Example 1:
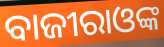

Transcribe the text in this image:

ବାଜୀରାଓଙ୍କ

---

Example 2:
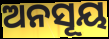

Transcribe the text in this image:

ଅନସୂୟ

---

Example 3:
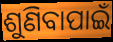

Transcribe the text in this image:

ଶୁଣିବାପାଇଁ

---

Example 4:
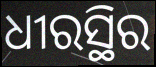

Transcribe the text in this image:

ଧୀରସ୍ଥିର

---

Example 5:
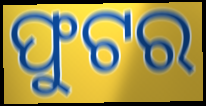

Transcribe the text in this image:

ଫୁଟର